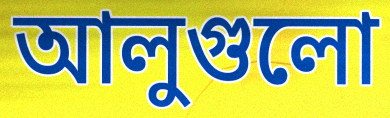
আলুগুলো